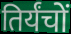
तिर्यंचों